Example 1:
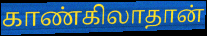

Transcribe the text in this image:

காண்கிலாதான்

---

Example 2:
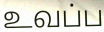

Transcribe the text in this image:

உவப்ப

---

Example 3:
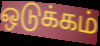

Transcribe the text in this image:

ஒடுக்கம்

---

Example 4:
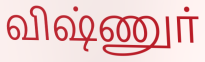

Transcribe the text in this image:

விஷ்ணுர்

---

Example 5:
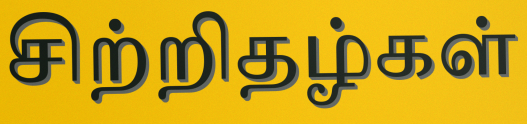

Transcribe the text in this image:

சிற்றிதழ்கள்